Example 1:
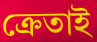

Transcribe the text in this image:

ক্রেতাই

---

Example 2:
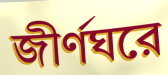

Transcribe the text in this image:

জীর্ণঘরে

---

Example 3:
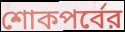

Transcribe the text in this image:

শোকপর্বের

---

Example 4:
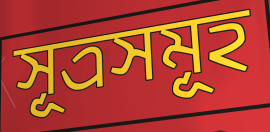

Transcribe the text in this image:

সূত্রসমূহ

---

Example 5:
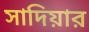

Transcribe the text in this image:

সাদিয়ার